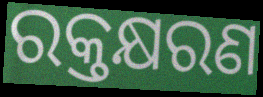
ରକ୍ତକ୍ଷରଣ